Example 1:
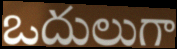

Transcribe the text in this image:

ఒదులుగా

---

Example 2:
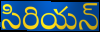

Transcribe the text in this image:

సిరియన్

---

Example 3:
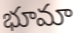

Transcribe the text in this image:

భూమా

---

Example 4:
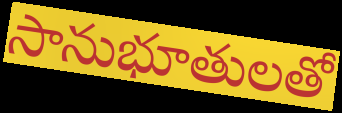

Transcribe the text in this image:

సానుభూతులతో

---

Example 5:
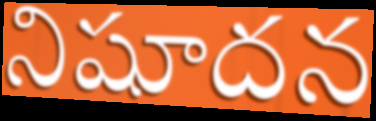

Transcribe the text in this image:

నిషూదన